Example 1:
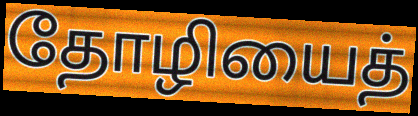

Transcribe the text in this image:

தோழியைத்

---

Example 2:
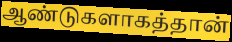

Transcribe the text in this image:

ஆண்டுகளாகத்தான்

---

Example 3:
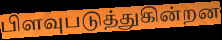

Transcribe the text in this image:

பிளவுபடுத்துகின்றன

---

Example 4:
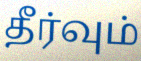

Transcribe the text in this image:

தீர்வும்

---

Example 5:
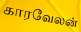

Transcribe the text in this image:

காரவேலன்